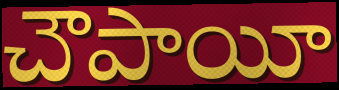
చౌపాయీ